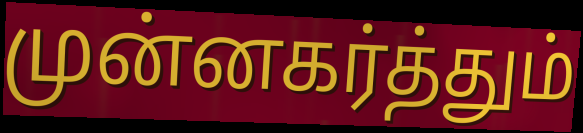
முன்னகர்த்தும்